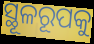
ସ୍ଥୂଳରୂପକୁ